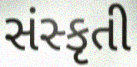
સંસ્કૃતી